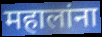
महालांना